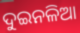
ଦୁଇନଳିଆ